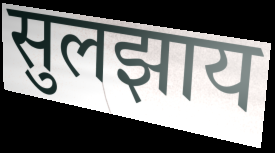
सुलझाय